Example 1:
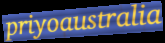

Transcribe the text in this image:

priyoaustralia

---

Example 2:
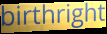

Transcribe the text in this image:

birthright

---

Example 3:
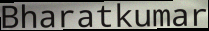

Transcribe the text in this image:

Bharatkumar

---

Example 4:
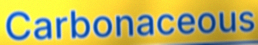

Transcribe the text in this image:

Carbonaceous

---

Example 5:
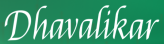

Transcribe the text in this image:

Dhavalikar